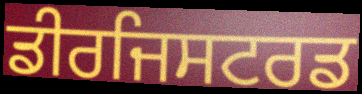
ਡੀਰਜਿਸਟਰਡ